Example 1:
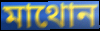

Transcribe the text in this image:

মাথোন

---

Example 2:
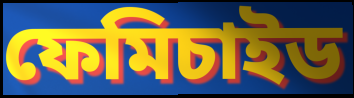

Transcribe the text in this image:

ফেমিচাইড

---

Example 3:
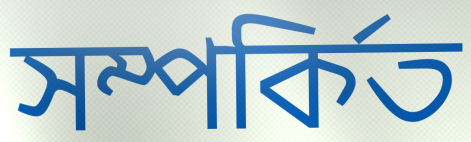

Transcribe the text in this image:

সম্পৰ্কিত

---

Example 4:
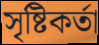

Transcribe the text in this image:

সৃষ্টিকৰ্তা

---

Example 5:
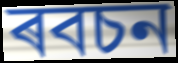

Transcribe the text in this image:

ৰবচন